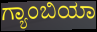
ಗ್ಯಾಂಬಿಯಾ